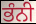
ਭੰਨੀ